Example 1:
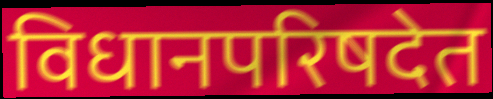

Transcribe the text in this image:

विधानपरिषदेत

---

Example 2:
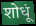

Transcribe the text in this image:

शोधूं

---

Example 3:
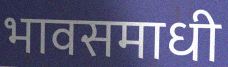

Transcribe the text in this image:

भावसमाधी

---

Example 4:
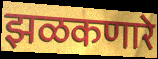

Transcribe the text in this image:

झळकणारे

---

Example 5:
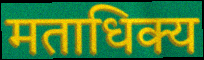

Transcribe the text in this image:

मताधिक्‍य